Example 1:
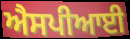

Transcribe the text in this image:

ਐਸਪੀਆਈ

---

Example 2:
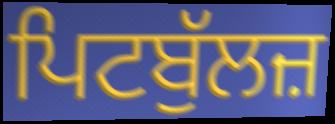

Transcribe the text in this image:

ਪਿਟਬੁੱਲਜ਼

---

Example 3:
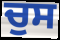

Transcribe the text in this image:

ਚੁਸ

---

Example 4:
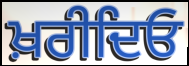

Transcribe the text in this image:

ਖ਼ਰੀਦਿਓ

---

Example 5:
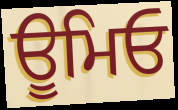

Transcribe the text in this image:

ਊਮਿਓ